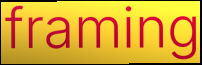
framing